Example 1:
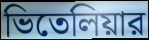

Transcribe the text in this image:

ভিতেলিয়ার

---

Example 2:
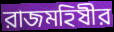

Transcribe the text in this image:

রাজমহিষীর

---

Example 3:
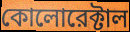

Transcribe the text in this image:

কোলোরেক্টাল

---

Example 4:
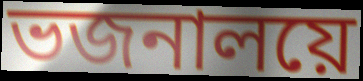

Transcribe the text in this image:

ভজনালয়ে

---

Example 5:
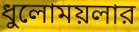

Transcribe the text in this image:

ধুলোময়লার